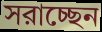
সরাচ্ছেন